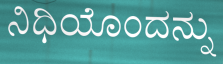
ನಿಧಿಯೊಂದನ್ನು